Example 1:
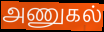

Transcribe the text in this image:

அணுகல்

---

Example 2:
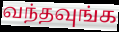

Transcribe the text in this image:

வந்தவுங்க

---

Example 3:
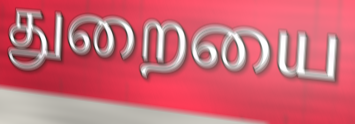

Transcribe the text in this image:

துறையை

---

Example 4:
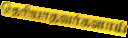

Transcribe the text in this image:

தெரியாதவர்களாய்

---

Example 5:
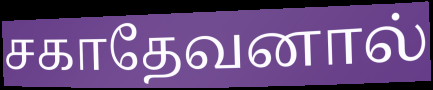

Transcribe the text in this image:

சகாதேவனால்